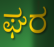
ಘರ